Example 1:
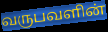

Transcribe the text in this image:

வருபவளின்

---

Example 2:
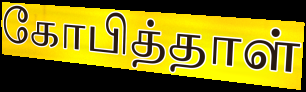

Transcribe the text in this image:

கோபித்தாள்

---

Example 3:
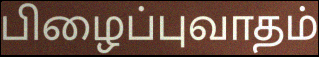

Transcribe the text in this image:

பிழைப்புவாதம்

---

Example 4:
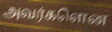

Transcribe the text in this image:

அவர்களென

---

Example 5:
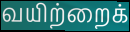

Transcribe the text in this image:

வயிற்றைக்